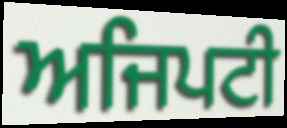
ਅਜਿਪਟੀ